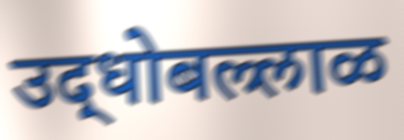
उद्धोबल्लाळ